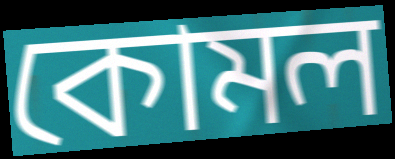
কোমল